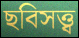
ছবিসত্ত্ব